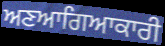
ਅਣਆਗਿਆਕਾਰੀ